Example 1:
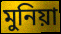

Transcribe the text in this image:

মুনিয়া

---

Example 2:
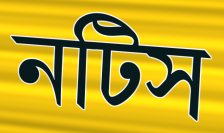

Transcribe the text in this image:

নটিস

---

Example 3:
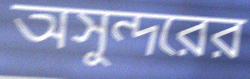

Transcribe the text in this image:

অসুন্দরের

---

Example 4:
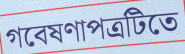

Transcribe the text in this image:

গবেষণাপত্রটিতে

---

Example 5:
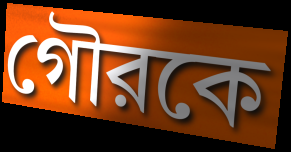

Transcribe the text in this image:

গৌরকে